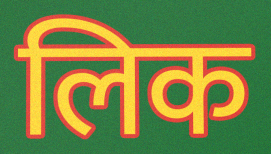
लिक